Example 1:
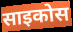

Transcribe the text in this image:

साइकोस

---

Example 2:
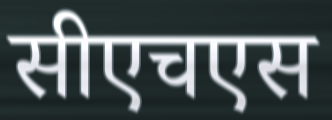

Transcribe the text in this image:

सीएचएस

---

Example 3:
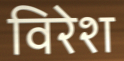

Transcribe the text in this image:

विरेश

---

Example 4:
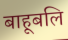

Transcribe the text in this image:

बाहूबलि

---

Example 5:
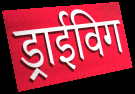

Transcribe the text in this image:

ड्राईविग